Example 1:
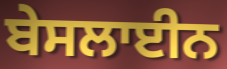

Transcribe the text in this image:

ਬੇਸਲਾਈਨ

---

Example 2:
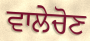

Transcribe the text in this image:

ਵਾਲੇਚੋਣ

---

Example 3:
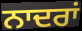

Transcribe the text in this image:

ਨਾਦਰਾਂ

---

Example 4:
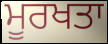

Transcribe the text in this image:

ਮੂਰਖਤਾ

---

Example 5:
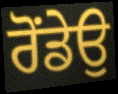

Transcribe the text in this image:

ਰੋਂਡੇਉ